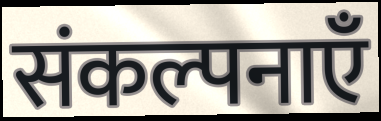
संकल्पनाएँ